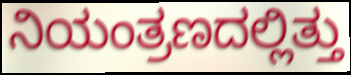
ನಿಯಂತ್ರಣದಲ್ಲಿತ್ತು